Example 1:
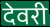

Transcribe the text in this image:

देवरी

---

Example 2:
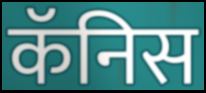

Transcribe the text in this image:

कॅनिस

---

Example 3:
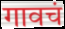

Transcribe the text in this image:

गावचं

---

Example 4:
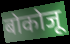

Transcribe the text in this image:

बोकोजू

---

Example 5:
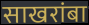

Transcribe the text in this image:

साखरांबा